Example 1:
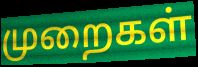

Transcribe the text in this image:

முறைகள்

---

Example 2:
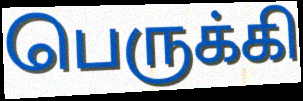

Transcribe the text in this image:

பெருக்கி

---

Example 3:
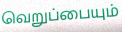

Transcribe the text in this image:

வெறுப்பையும்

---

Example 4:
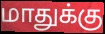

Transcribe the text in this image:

மாதுக்கு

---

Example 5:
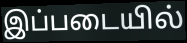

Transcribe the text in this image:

இப்படையில்